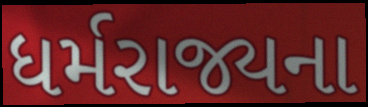
ધર્મરાજ્યના